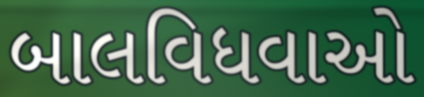
બાલવિધવાઓ